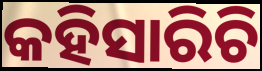
କହିସାରିଚି